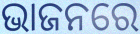
ଭାଜନରେ